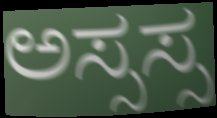
ಅಸ್ಸಸ್ಸ